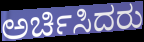
ಅರ್ಚಿಸಿದರು